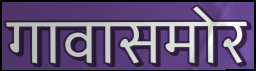
गावासमोर